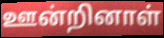
ஊன்றினாள்